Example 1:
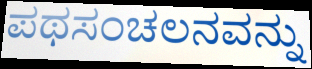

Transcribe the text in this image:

ಪಥಸಂಚಲನವನ್ನು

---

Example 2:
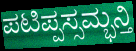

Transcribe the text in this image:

ಪಟಿಪ್ಪಸ್ಸಮ್ಭನ್ತಿ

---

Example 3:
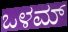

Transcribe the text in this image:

ಒಳಮ್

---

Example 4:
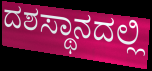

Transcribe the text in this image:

ದಶಸ್ಥಾನದಲ್ಲಿ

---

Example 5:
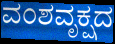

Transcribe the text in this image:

ವಂಶವೃಕ್ಷದ